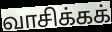
வாசிக்கக்